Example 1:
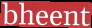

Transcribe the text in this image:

bheent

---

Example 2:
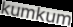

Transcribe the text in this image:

kumkum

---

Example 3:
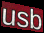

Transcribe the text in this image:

usb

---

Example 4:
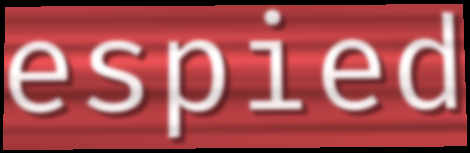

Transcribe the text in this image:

espied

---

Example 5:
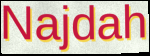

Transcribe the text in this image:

Najdah